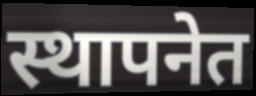
स्थापनेत